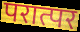
परात्‍पर